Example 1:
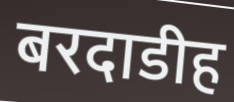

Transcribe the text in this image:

बरदाडीह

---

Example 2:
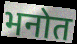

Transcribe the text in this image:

भनोत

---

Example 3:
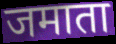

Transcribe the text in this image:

जमाता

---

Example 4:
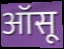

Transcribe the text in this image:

ऑसू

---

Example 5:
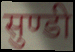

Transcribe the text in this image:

सुण्डी